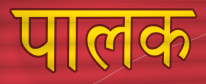
पालक